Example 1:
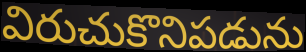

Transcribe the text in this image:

విరుచుకొనిపడును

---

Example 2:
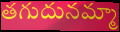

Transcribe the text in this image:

తగుదునమ్మా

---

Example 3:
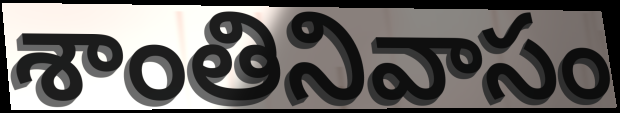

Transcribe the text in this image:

శాంతినివాసం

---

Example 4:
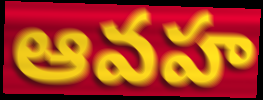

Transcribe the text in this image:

ఆవహ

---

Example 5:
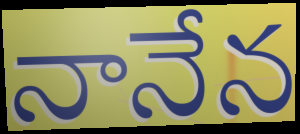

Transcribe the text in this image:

నానేన